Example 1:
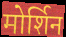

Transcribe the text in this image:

मोर्शिन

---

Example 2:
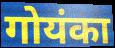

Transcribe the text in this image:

गोयंका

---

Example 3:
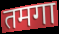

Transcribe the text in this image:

तमगा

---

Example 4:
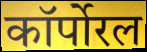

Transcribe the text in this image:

कॉर्पोरल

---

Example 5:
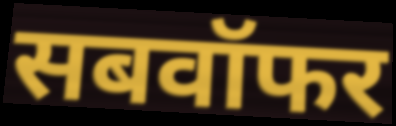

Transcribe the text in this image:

सबवॉफर